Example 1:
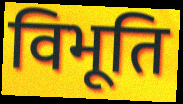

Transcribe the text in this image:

विभूति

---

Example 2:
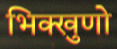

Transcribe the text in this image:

भिक्खुणो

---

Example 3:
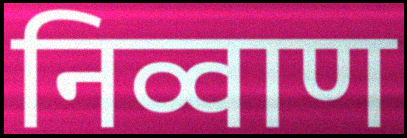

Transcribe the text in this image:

निव्वाण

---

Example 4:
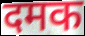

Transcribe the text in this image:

दमक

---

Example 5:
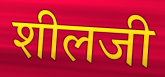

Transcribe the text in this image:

शीलजी